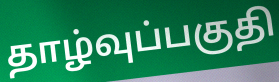
தாழ்வுப்பகுதி